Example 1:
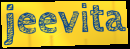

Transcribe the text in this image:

jeevita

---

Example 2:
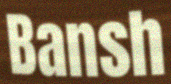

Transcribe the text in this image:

Bansh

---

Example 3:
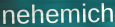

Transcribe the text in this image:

nehemich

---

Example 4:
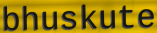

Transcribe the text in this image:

bhuskute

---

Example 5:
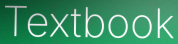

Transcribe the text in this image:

Textbook